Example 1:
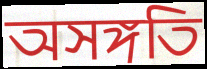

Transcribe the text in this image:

অসঙ্গতি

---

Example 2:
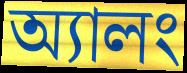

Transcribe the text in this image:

অ্যালং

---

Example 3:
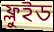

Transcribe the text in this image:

ফ্লুইড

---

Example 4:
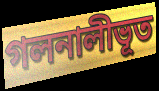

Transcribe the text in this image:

গলনালীভূত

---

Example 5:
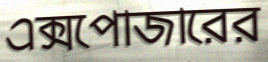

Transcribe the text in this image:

এক্সপোজারের